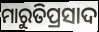
ମାରୁତିପ୍ରସାଦ